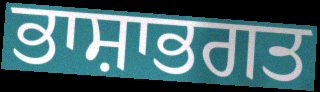
ਭਾਸ਼ਾਭਗਤ